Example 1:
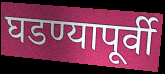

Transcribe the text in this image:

घडण्यापूर्वी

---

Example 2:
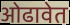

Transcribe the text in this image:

ओढावेत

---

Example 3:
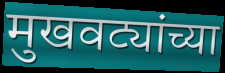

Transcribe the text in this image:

मुखवट्यांच्या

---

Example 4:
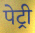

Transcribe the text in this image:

पेट्री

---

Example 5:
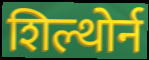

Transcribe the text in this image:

शिल्थोर्न